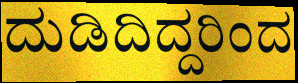
ದುಡಿದಿದ್ದರಿಂದ